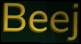
Beej